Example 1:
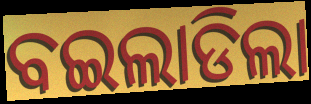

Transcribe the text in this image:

ବଇଲାଡିଲା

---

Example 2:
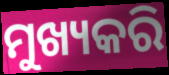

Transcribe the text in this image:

ମୁଖ୍ୟକରି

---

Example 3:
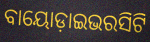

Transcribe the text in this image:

ବାୟୋଡ଼ାଇଭରସିଟି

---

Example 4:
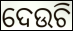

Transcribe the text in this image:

ଦେଉଚି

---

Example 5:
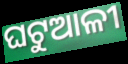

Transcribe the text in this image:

ଘଟୁଆଳୀ